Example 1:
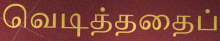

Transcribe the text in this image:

வெடித்ததைப்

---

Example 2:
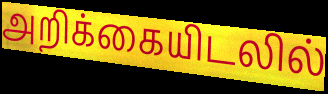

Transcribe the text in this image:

அறிக்கையிடலில்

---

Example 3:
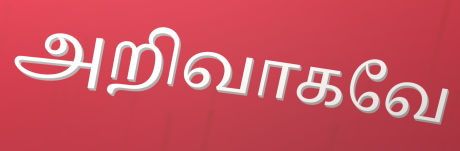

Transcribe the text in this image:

அறிவாகவே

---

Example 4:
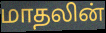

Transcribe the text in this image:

மாதலின்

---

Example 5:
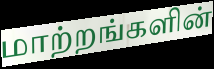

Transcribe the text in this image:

மாற்றங்களின்